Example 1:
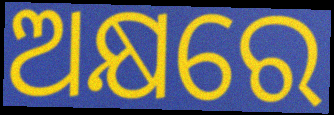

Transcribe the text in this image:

ଅକ୍ଷରେ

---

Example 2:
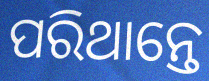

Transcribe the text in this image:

ପରିଥାନ୍ତେ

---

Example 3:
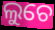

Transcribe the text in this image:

ଲୁଚେ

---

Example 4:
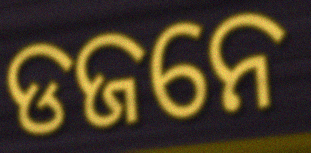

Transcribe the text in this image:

ଡଜନେ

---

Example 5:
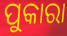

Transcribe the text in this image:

ପୁକାରା